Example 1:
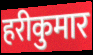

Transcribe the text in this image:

हरीकुमार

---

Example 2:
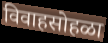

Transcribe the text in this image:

विवाहसोहळा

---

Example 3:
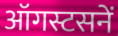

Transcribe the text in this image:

ऑगस्टसनें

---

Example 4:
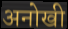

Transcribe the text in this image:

अनोखी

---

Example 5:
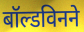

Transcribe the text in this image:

बॉल्डविनने